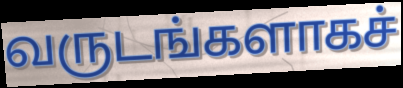
வருடங்களாகச்